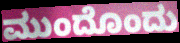
ಮುಂದೊಂದು